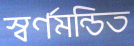
স্বর্ণমন্ডিত